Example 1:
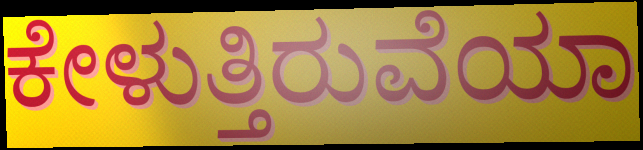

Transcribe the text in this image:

ಕೇಳುತ್ತಿರುವೆಯಾ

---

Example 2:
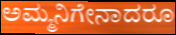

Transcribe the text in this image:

ಅಮ್ಮನಿಗೇನಾದರೂ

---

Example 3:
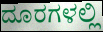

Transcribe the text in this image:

ದೂರಗಳಲ್ಲಿ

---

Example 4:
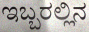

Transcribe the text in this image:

ಇಬ್ಬರಲ್ಲಿನ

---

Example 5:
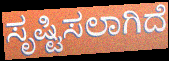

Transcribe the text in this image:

ಸೃಷ್ಟಿಸಲಾಗಿದೆ